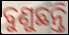
ବୁଣୁଛନ୍ତି